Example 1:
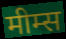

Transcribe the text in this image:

मीम्स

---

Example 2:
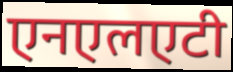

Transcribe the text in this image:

एनएलएटी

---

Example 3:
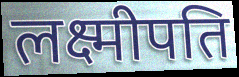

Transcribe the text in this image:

लक्ष्मीपति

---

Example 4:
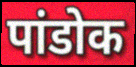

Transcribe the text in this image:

पांडोक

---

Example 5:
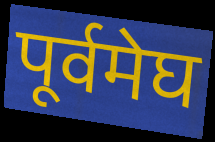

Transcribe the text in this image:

पूर्वमेघ